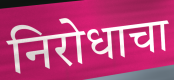
निरोधाचा